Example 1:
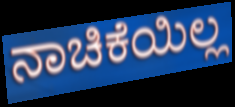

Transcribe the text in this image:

ನಾಚಿಕೆಯಿಲ್ಲ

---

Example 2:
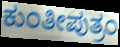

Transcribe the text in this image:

ಕುಂತೀಪುತ್ರಂ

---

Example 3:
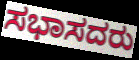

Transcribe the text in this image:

ಸಭಾಸದರು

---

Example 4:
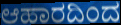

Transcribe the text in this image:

ಆಹಾರದಿಂದ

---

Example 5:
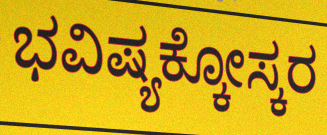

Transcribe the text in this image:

ಭವಿಷ್ಯಕ್ಕೋಸ್ಕರ